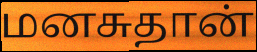
மனசுதான்